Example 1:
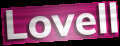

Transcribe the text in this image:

Lovell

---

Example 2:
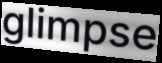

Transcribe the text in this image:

glimpse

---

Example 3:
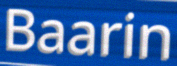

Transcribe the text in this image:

Baarin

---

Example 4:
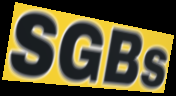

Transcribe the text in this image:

SGBs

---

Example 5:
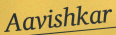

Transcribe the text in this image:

Aavishkar